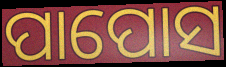
ପାପୋସ